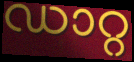
ഡാറ്റ